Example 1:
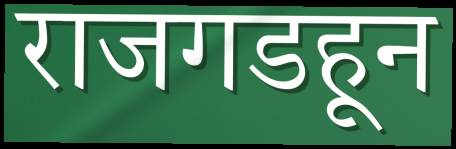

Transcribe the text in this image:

राजगडहून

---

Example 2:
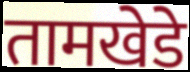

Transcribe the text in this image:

तामखेडे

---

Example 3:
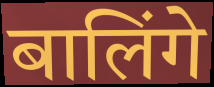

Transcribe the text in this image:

बालिंगे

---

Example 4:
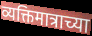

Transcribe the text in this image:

व्यक्तिमात्राच्या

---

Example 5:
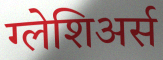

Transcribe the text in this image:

ग्लेशिअर्स